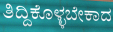
ತಿದ್ದಿಕೊಳ್ಳಬೇಕಾದ